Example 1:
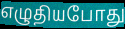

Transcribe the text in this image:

எழுதியபோது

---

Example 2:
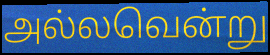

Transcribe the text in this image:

அல்லவென்று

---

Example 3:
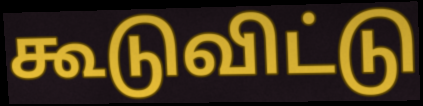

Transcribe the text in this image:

கூடுவிட்டு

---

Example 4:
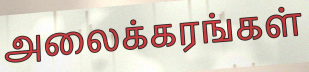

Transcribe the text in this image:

அலைக்கரங்கள்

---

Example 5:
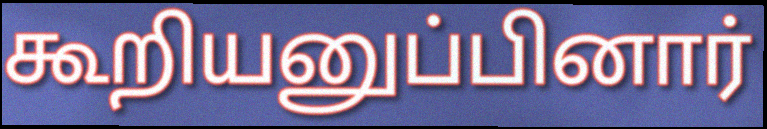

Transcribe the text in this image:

கூறியனுப்பினார்